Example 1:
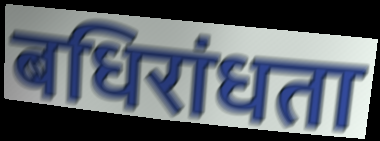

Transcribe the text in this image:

बधिरांधता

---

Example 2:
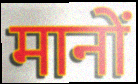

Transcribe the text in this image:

मानों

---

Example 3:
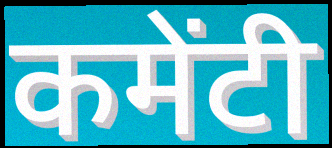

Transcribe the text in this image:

कमेंटी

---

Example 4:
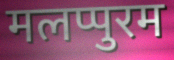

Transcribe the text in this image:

मलप्पुरम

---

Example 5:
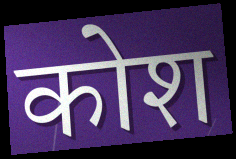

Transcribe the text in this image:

कोश